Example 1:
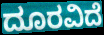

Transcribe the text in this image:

ದೂರವಿದೆ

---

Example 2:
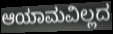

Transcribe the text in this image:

ಆಯಾಮವಿಲ್ಲದ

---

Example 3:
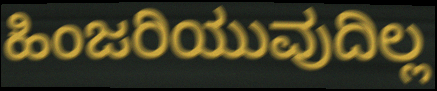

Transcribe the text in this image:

ಹಿಂಜರಿಯುವುದಿಲ್ಲ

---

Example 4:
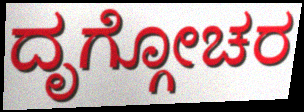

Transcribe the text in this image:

ದೃಗ್ಗೋಚರ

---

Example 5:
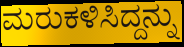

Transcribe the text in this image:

ಮರುಕಳಿಸಿದ್ದನ್ನು